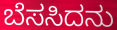
ಬೆಸಸಿದನು